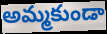
అమ్మకుండా